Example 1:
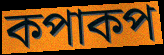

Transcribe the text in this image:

কপাকপ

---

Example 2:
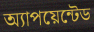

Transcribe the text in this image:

অ্যাপয়েন্টেড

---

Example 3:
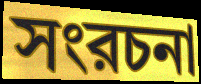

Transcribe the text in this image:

সংরচনা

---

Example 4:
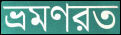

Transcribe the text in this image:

ভ্রমণরত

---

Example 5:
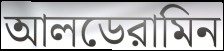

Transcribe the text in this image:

আলডেরামিন